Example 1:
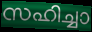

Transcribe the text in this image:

സഹിച്ചാ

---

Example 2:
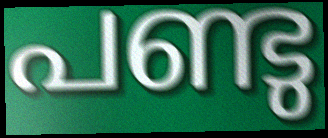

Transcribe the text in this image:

പണ്ടു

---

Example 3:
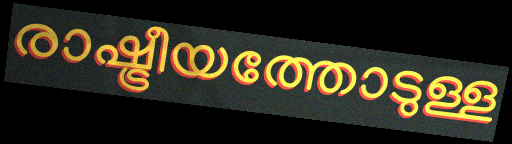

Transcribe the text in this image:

രാഷ്ട്രീയത്തോടുള്ള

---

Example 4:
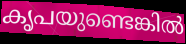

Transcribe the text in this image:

കൃപയുണ്ടെങ്കിൽ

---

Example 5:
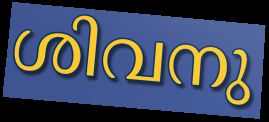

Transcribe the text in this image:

ശിവനു